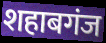
शहाबगंज